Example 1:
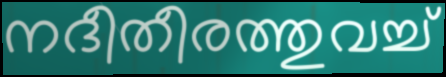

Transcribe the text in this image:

നദീതീരത്തുവച്ച്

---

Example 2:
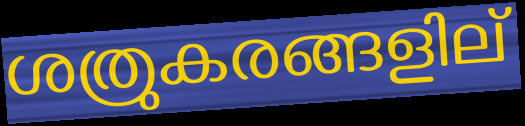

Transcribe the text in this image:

ശത്രുകരങ്ങളില്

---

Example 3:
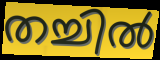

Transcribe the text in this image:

തച്ചിൽ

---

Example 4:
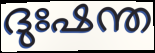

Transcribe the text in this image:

ദുഃഷന്ത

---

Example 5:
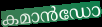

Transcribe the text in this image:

കമാൻഡോ